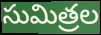
సుమిత్రల